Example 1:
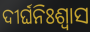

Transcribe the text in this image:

ଦୀର୍ଘନିଃଶ୍ବାସ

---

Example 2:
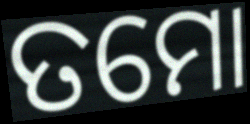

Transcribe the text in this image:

ତମୋ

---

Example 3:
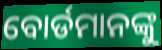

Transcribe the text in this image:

ବୋର୍ଡମାନଙ୍କୁ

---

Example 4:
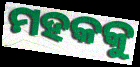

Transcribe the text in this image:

ମହକକୁ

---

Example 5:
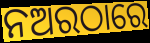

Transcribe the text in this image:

ନଅରଠାରେ